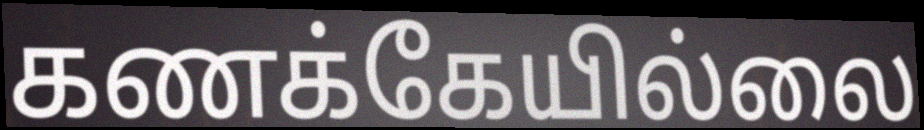
கணக்கேயில்லை